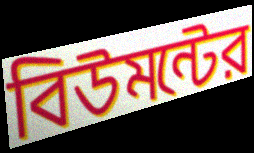
বিউমন্টের